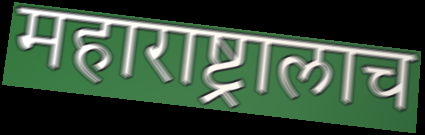
महाराष्ट्रालाच